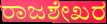
ರಾಜಶೇಖರ